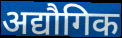
अद्यौगिक